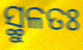
ସ୍ଥୁଳତଃ